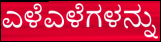
ಎಳೆಎಳೆಗಳನ್ನು